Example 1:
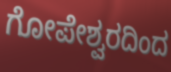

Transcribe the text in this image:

ಗೋಪೇಶ್ವರದಿಂದ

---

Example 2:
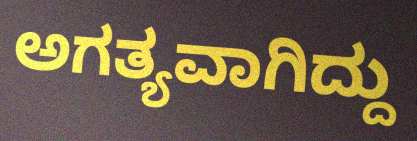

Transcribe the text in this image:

ಅಗತ್ಯವಾಗಿದ್ದು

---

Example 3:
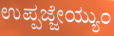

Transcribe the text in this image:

ಉಪ್ಪಜ್ಜೇಯ್ಯುಂ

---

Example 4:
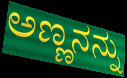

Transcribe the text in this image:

ಅಣ್ಣನನ್ನು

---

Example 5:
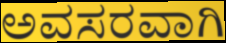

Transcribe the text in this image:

ಅವಸರವಾಗಿ